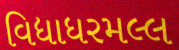
વિદ્યાધરમલ્લ